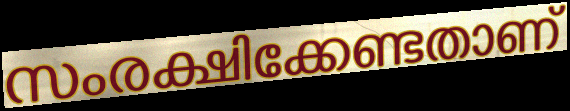
സംരക്ഷിക്കേണ്ടതാണ്